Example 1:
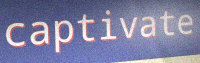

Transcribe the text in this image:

captivate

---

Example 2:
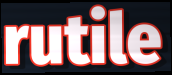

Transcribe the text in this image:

rutile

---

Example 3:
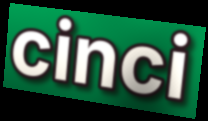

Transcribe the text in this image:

cinci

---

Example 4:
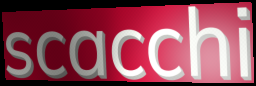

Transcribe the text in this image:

scacchi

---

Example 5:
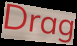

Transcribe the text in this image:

Drag